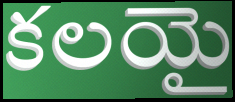
కలయై